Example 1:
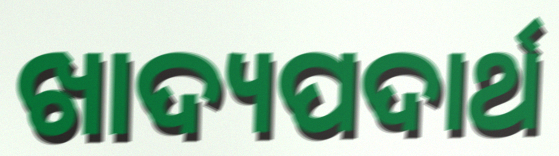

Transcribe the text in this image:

ଖାଦ୍ୟପଦାର୍ଥ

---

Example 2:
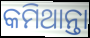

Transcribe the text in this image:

କମିଥାନ୍ତା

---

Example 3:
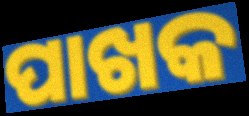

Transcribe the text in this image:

ପାଖକ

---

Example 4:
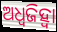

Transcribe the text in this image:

ଅଧ୍ୱଜିହ୍ବା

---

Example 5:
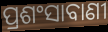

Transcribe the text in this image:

ପ୍ରଶଂସାବାଣୀ